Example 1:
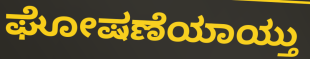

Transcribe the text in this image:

ಘೋಷಣೆಯಾಯ್ತು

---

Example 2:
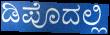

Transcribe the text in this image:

ಡಿಪೊದಲ್ಲಿ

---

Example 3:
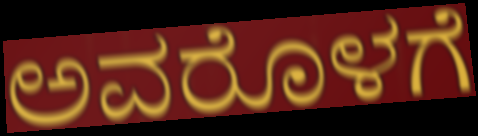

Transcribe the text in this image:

ಅವರೊಳಗೆ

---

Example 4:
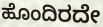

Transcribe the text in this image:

ಹೊಂದಿರದೇ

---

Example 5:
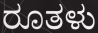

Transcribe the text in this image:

ರೂತಳು